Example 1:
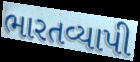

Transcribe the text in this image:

ભારતવ્યાપી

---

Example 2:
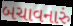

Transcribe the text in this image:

બચાવનારું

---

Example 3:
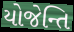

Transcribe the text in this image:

યોજેન્તિ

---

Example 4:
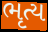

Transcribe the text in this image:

ભૃત્ય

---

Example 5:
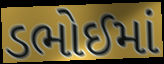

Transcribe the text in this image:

ડભોઈમાં